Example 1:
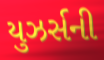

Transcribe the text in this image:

યુઝર્સની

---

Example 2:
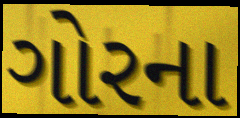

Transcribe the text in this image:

ગોરના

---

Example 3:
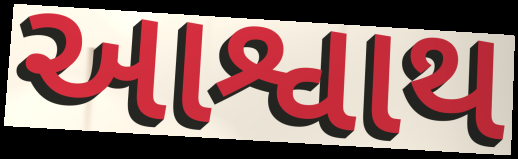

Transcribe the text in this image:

આશ્વાથ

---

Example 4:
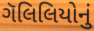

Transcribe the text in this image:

ગૅલિલિયોનું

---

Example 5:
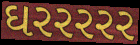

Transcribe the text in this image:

ઘરરરરર